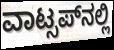
ವಾಟ್ಸಪ್‍ನಲ್ಲಿ